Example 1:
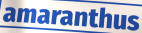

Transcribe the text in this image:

amaranthus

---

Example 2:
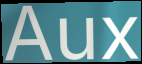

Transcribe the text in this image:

Aux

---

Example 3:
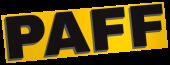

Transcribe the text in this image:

PAFF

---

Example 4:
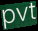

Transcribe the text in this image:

pvt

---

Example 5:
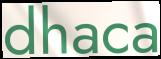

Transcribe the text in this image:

dhaca